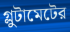
গ্লুটামেটের